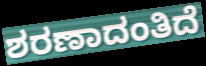
ಶರಣಾದಂತಿದೆ